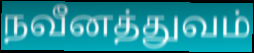
நவீனத்துவம்